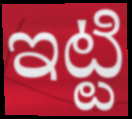
ఇట్టి